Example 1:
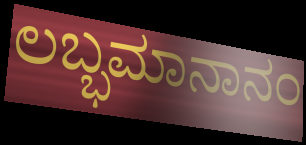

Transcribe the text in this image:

ಲಬ್ಭಮಾನಾನಂ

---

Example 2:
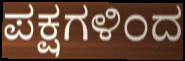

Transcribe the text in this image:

ಪಕ್ಷಗಳಿಂದ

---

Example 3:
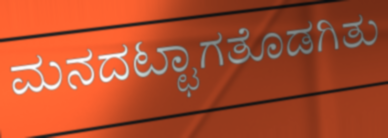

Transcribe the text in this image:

ಮನದಟ್ಟಾಗತೊಡಗಿತು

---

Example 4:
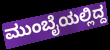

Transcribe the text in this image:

ಮುಂಬೈಯಲ್ಲಿದ್ದ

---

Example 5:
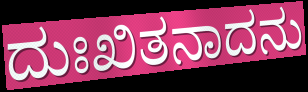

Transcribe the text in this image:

ದುಃಖಿತನಾದನು